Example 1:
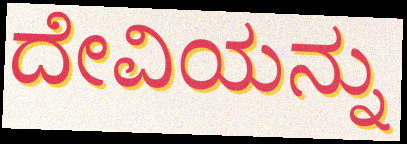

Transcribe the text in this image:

ದೇವಿಯನ್ನು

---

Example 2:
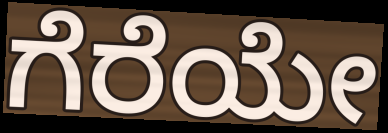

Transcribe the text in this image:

ಗೆರೆಯೇ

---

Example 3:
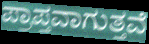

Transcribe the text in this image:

ಪ್ರಾಪ್ತವಾಗುತ್ತವೆ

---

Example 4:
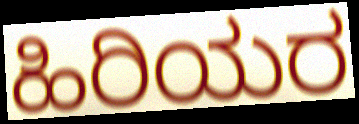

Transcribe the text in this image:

ಹಿರಿಯರ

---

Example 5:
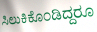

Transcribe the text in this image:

ಸಿಲುಕಿಕೊಂಡಿದ್ದರೂ